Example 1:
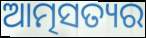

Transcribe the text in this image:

ଆତ୍ମସତ୍ୟର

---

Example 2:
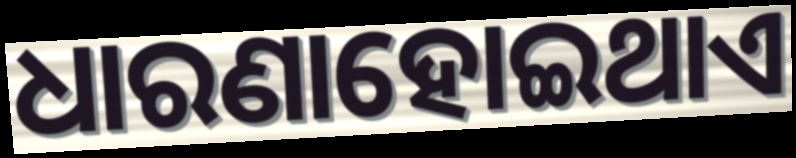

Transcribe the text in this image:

ଧାରଣାହୋଇଥାଏ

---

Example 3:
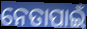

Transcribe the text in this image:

ନେତାପାଇଁ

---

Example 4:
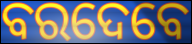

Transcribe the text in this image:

ବରଦେବେ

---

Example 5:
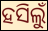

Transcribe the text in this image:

ହସିଲୁଁ